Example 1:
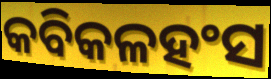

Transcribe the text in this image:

କବିକଳହଂସ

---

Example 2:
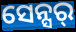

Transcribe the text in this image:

ସେନ୍ସର୍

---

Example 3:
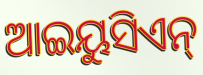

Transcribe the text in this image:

ଆଇୟୁସିଏନ୍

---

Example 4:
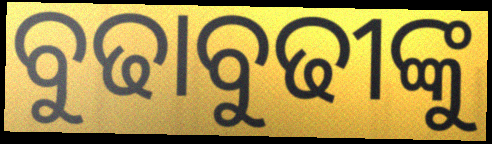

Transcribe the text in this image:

ବୁଢାବୁଢୀଙ୍କୁ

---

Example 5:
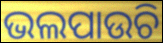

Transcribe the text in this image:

ଭଲପାଉଚି